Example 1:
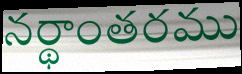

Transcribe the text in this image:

నర్థాంతరము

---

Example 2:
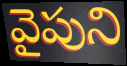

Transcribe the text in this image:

వైపుని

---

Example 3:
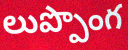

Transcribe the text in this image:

లుప్పొంగ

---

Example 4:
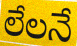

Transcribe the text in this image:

లేలనే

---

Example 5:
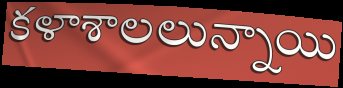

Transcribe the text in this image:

కళాశాలలున్నాయి